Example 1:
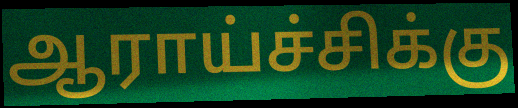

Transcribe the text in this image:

ஆராய்ச்சிக்கு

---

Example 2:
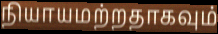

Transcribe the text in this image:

நியாயமற்றதாகவும்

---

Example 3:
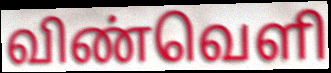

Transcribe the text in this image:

விண்வெளி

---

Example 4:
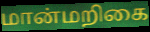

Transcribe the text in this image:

மான்மறிகை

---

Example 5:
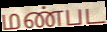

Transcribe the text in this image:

மண்பட